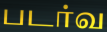
படர்வ